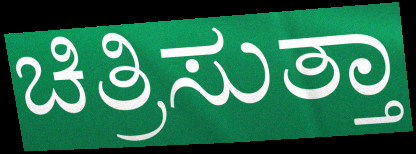
ಚಿತ್ರಿಸುತ್ತಾ